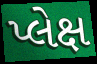
પ્લેક્ષ